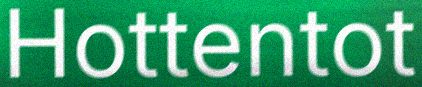
Hottentot